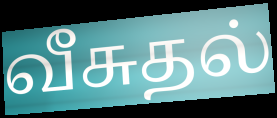
வீசுதல்